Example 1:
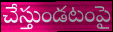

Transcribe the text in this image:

చేస్తుండటంపై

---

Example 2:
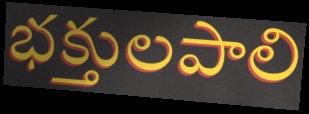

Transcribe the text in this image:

భక్తులపాలి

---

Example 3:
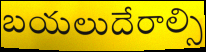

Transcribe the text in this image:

బయలుదేరాల్సి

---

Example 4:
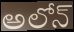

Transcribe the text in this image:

అలోన్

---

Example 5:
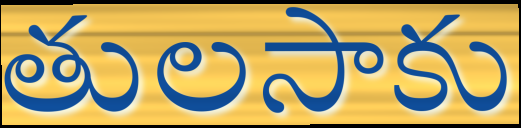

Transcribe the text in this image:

తులసాకు